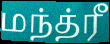
மந்த்ரீ